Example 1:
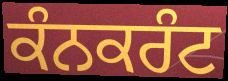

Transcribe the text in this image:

ਕੰਨਕਰੰਟ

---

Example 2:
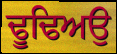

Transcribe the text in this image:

ਢੂਢਿਅਉ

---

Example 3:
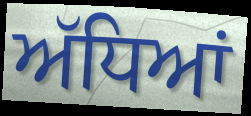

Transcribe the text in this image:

ਅੱਧਿਆਂ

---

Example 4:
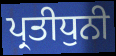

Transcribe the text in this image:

ਪ੍ਰਤੀਧੁਨੀ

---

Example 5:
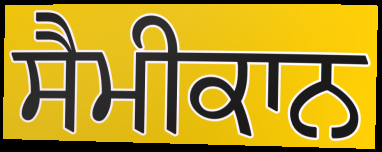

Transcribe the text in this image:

ਸੈਮੀਕਾਨ